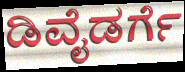
ಡಿವೈಡರ್ಗೆ